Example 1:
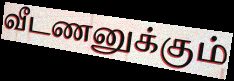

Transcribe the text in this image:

வீடணனுக்கும்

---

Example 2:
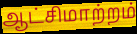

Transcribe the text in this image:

ஆட்சிமாற்றம்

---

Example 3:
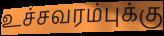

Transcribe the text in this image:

உச்சவரம்புக்கு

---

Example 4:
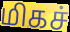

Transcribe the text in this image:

மிகச்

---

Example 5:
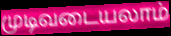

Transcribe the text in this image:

முடிவடையலாம்